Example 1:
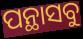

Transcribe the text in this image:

ପନ୍ଥାସବୁ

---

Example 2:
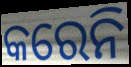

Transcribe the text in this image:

କରେନି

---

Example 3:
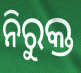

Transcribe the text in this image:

ନିରୁକ୍ତ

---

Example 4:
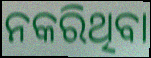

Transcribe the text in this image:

ନକରିଥିବା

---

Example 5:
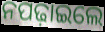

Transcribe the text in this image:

ନପଢ଼ାଇଲେ